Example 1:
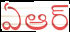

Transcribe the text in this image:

ఏఆర్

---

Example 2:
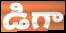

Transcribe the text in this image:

డిగా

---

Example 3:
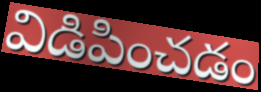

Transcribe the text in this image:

విడిపించడం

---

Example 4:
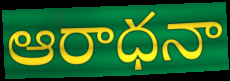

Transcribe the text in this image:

ఆరాధనా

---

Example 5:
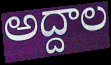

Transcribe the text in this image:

అద్దాల